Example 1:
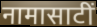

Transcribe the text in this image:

नामासाटीं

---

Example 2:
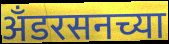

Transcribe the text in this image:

अँडरसनच्या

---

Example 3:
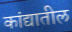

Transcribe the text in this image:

कांद्यातील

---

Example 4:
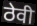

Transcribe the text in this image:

ठेवी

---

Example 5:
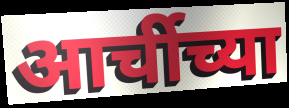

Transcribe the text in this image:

आर्चीच्या